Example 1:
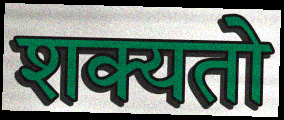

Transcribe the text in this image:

शक्‍यतो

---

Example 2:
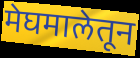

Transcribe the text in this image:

मेघमालेतून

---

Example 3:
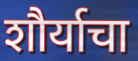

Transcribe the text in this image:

शौर्याचा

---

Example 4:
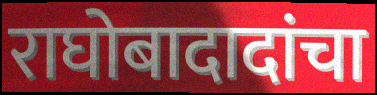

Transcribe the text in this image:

राघोबादादांचा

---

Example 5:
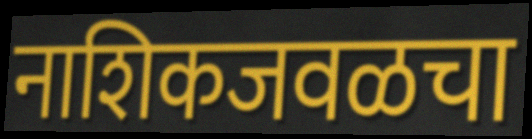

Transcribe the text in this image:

नाशिकजवळचा